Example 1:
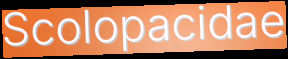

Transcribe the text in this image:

Scolopacidae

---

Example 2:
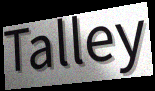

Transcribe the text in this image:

Talley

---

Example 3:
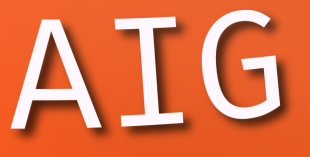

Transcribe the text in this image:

AIG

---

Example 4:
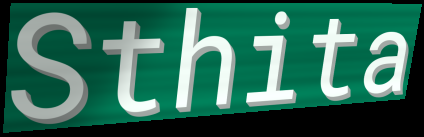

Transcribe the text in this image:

Sthita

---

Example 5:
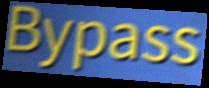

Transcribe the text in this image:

Bypass